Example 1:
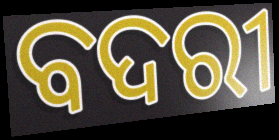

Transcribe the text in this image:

ବଦରୀ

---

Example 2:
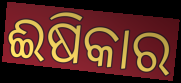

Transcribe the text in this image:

ଈଷିକାର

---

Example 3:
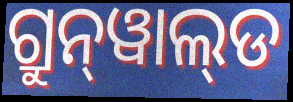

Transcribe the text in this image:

ଗ୍ରୁନ୍‌ୱାଲ୍‌ଡ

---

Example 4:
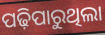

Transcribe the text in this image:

ପଢ଼ିପାରୁଥିଲା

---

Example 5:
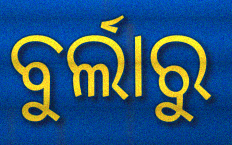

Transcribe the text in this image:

ବୁର୍ଲାରୁ